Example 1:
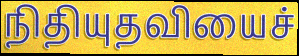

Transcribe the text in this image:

நிதியுதவியைச்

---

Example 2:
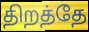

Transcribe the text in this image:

திறத்தே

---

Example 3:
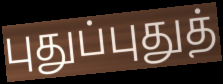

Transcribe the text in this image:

புதுப்புதுத்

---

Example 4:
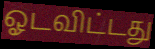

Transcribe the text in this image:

ஓடவிட்டது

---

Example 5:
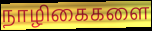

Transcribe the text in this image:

நாழிகைகளை